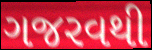
ગજરવથી